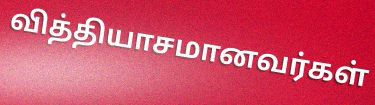
வித்தியாசமானவர்கள்